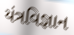
યંત્રવિજ્ઞાન